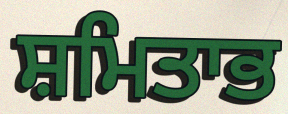
ਸ਼ਮਿਤਾਭ